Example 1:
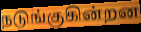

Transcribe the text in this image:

நடுங்குகின்றன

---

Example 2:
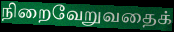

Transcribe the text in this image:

நிறைவேறுவதைக்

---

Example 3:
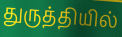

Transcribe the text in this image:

துருத்தியில்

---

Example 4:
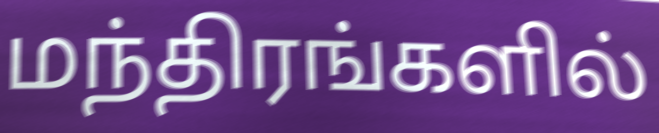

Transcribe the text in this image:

மந்திரங்களில்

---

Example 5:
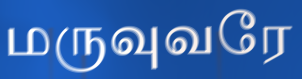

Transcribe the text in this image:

மருவுவரே